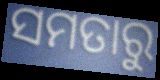
ସମତାରୁ